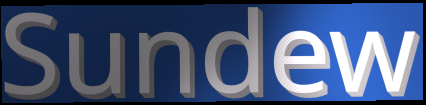
Sundew